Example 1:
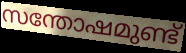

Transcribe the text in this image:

സന്തോഷമുണ്ട്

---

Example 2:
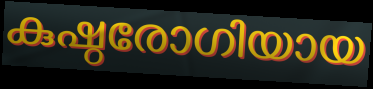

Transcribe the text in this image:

കുഷ്ഠരോഗിയായ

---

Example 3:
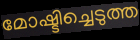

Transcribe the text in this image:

മോഷ്ടിച്ചെടുത്ത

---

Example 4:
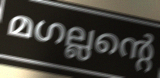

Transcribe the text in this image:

മഗല്ലന്റെ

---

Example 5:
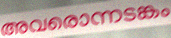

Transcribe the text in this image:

അവരൊന്നടങ്കം